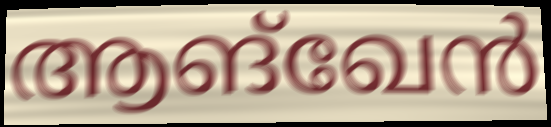
ആങ്ഖേൻ